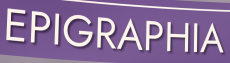
EPIGRAPHIA